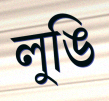
লুঙি